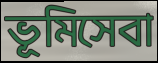
ভূমিসেবা